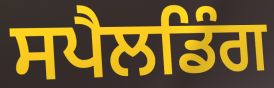
ਸਪੈਲਡਿੰਗ